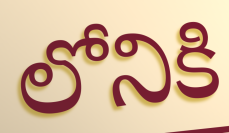
లోనికి